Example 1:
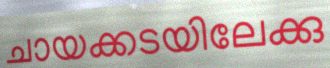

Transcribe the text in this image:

ചായക്കടയിലേക്കു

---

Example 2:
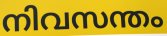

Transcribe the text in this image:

നിവസന്തം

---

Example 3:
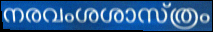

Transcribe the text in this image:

നരവംശശാസ്‌ത്രം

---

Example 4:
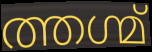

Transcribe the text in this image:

ത്തഗ്മ്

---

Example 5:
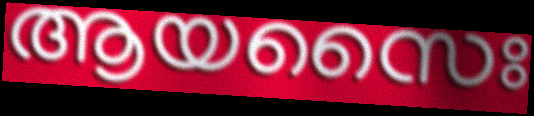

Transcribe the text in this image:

ആയസൈഃ